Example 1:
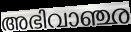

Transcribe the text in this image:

അഭിവാഞ്ഛ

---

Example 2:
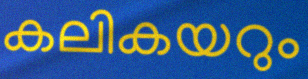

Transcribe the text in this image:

കലികയറും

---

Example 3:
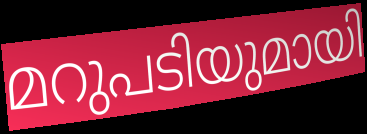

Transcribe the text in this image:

മറുപടിയുമായി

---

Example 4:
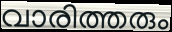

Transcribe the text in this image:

വാരിത്തരും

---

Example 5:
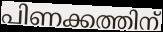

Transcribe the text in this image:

പിണക്കത്തിന്